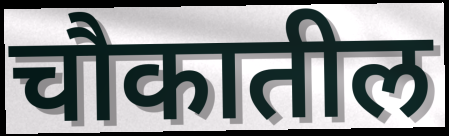
चौकातील